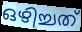
ഒഴിച്ചത്